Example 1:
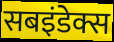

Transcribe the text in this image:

सबइंडेक्स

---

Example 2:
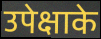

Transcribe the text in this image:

उपेक्षाके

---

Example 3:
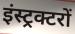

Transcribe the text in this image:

इंस्ट्रक्टरों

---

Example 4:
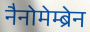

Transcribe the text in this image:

नैनोमेम्ब्रेन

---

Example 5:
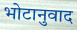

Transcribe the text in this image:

भोटानुवाद